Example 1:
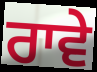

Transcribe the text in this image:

ਰਾਵੇ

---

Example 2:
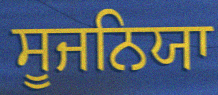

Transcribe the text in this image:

ਸੂਜਨਿਯਾ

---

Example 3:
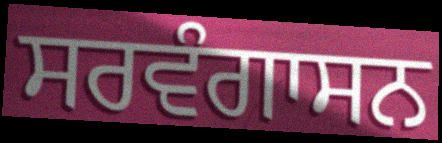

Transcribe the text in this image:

ਸਰਵੰਗਾਸਨ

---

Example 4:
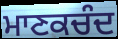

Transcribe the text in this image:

ਮਾਣਕਚੰਦ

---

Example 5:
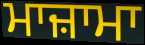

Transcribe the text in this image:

ਮਾਜ਼ਾਮਾ